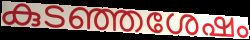
കുടഞ്ഞശേഷം